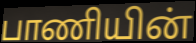
பாணியின்